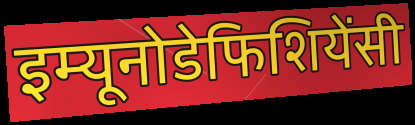
इम्यूनोडेफिशियेंसी